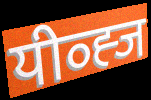
यीव्ह्ज